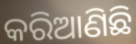
କରିଆଣିଛି